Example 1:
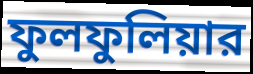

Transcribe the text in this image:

ফুলফুলিয়ার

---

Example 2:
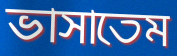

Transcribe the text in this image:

ভাসাতেম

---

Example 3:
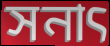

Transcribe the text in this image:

সনাৎ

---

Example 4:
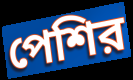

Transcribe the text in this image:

পেশির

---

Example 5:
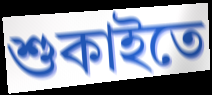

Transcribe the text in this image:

শুকাইতে